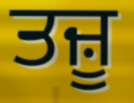
ਤਜ਼ੂ